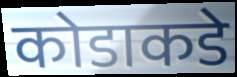
कोडाकडे